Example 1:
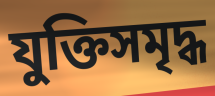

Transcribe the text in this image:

যুক্তিসমৃদ্ধ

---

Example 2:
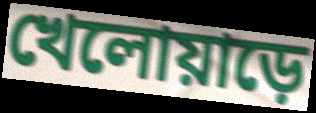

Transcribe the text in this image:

খেলোয়াড়ে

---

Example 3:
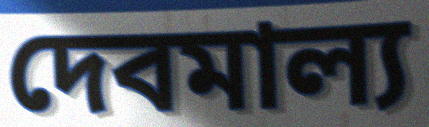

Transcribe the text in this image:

দেবমাল্য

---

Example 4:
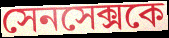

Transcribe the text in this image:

সেনসেক্সকে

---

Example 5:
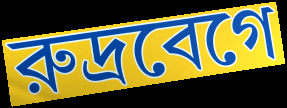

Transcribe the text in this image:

রুদ্রবেগে